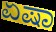
ಏಷಾ